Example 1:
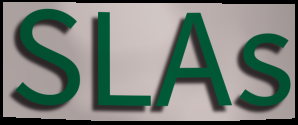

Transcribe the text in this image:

SLAs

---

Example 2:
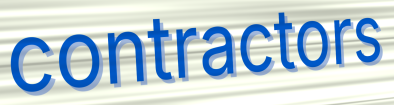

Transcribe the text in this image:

contractors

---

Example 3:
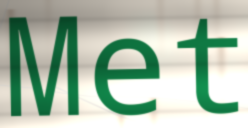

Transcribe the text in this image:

Met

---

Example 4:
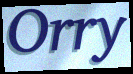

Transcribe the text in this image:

Orry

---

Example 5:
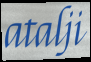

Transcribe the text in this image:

atalji